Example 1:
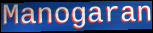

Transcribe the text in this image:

Manogaran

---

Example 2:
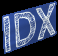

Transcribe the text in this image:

IDX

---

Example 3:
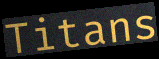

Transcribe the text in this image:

Titans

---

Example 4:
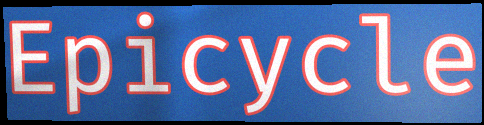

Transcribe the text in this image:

Epicycle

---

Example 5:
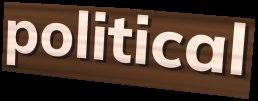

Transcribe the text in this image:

political